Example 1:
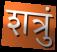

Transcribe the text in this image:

शत्रुं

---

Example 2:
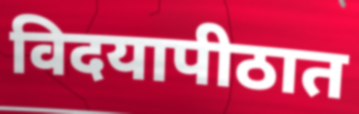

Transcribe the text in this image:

विदयापीठात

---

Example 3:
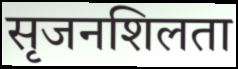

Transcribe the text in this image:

सृजनशिलता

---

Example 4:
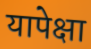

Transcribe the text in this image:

यापेक्षा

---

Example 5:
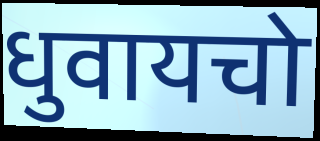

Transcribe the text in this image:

धुवायचो